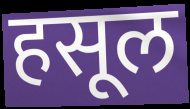
हसूल